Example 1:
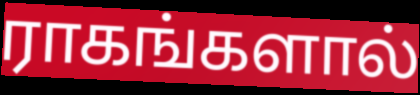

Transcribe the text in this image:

ராகங்களால்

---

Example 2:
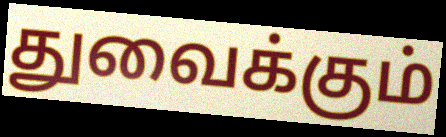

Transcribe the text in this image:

துவைக்கும்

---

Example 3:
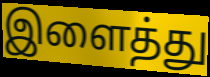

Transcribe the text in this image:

இளைத்து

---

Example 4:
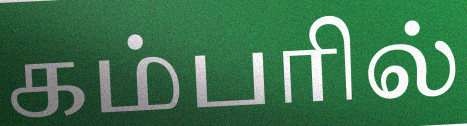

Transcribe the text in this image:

கம்பரில்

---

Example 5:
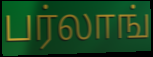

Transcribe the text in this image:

பர்லாங்